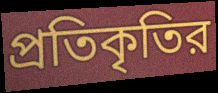
প্রতিকৃতির